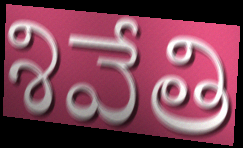
శివేతి